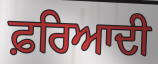
ਫ਼ਰਿਆਦੀ